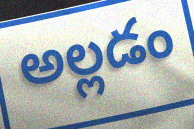
అల్లడం